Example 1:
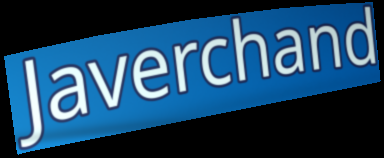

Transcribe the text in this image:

Javerchand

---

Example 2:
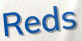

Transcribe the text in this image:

Reds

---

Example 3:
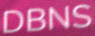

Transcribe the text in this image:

DBNS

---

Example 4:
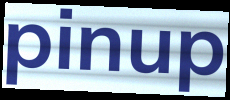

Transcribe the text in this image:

pinup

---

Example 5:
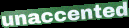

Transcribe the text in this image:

unaccented